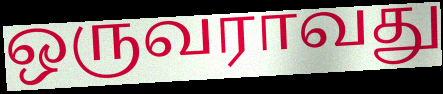
ஒருவராவது